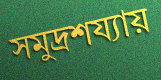
সমুদ্রশয্যায়